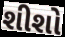
શીશો